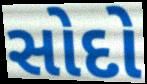
સોદો